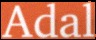
Adal